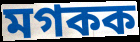
মগকক